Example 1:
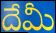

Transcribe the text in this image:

దేమీ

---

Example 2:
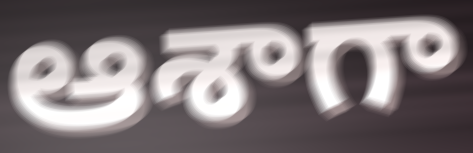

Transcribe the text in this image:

ఆశాగా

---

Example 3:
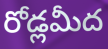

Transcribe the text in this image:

రోడ్లమీద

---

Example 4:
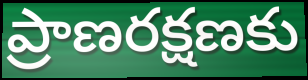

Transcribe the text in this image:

ప్రాణరక్షణకు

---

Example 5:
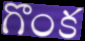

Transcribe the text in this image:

గొంక